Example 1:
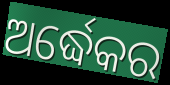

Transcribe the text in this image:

ଅର୍ଦ୍ଧେକର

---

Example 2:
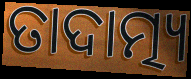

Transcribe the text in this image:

ତାଦାତ୍ମ୍ୟ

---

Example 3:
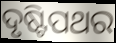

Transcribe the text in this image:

ଦୃଷ୍ଟିପଥର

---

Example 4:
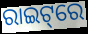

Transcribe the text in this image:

ରାଇଟ୍‌ରେ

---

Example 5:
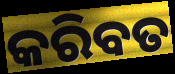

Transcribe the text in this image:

କରିବତ